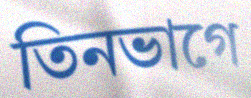
তিনভাগে